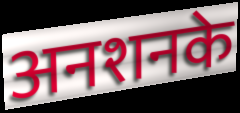
अनशनके